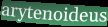
arytenoideus